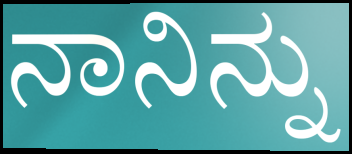
ನಾನಿನ್ನು